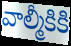
వాల్మీకికి